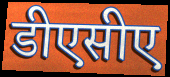
डीएसीए